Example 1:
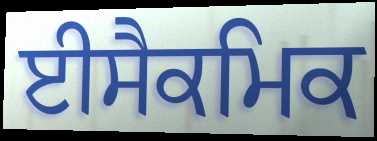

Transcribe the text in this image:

ਈਸੈਕਮਿਕ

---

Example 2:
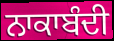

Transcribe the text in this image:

ਨਾਕਾਬੰਦੀ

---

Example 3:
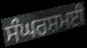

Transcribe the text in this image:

ਸੰਘਰਸ਼ਮਈ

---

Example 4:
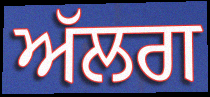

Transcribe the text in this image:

ਅੱਲਗ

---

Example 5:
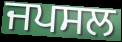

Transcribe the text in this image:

ਜਪਸਲ